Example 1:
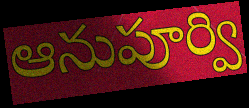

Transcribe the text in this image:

ఆనుపూర్వి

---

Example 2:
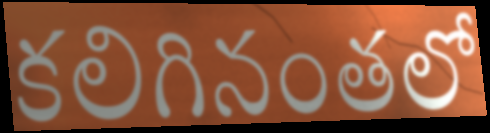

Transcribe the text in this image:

కలిగినంతలో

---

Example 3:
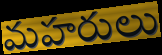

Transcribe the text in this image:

మహరులు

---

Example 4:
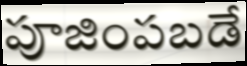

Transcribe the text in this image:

పూజింపబడే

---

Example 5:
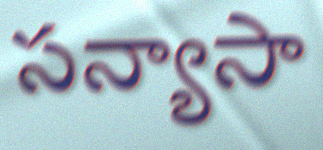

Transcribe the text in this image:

సన్యాసా